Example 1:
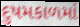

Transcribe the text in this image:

દુષમકાળમાં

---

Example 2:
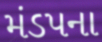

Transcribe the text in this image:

મંડપના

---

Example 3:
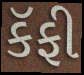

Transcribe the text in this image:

કૅફી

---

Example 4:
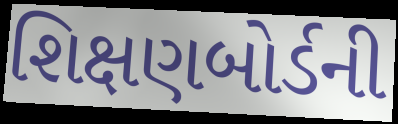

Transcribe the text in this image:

શિક્ષણબોર્ડની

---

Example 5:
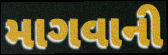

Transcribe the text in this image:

માગવાની